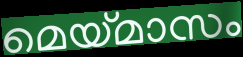
മെയ്മാസം